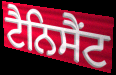
ਟੈਨਿਸੈਂਟ